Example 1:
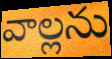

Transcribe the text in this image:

వాల్లను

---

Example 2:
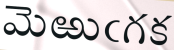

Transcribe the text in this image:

మెఱుఁగక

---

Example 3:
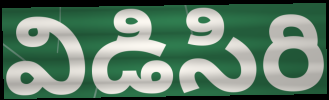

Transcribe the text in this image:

విడిసిరి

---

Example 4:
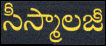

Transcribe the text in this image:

సీస్మాలజీ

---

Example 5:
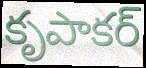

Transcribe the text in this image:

కృపాకర్